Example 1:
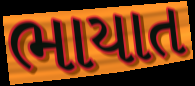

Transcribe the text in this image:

ભાયાત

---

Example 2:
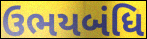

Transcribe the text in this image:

ઉભયબંધિ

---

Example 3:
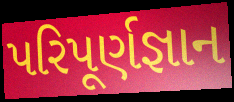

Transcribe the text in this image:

પરિપૂર્ણજ્ઞાન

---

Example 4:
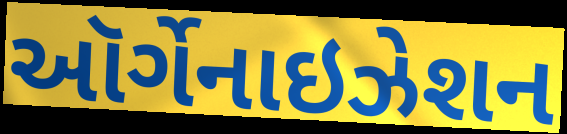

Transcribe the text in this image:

ઑર્ગેનાઇઝેશન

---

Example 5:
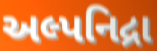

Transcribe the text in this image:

અલ્પનિદ્રા